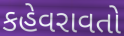
કહેવરાવતો